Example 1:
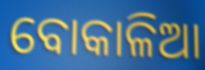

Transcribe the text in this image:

ବୋକାଳିଆ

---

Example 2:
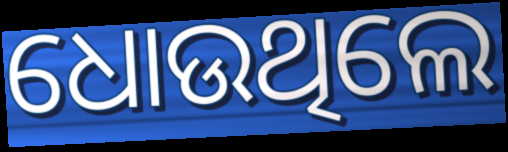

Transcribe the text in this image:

ଧୋଉଥିଲେ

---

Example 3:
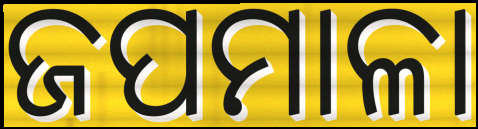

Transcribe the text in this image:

ଜପମାଳା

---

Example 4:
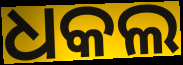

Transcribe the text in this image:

ଧକଲ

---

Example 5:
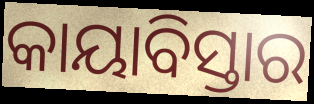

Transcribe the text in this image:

କାୟାବିସ୍ତାର